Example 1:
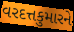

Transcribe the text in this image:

વરદત્તકુમારને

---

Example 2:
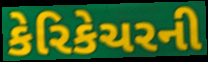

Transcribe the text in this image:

કેરિકેચરની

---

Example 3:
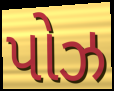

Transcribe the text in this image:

પોઝ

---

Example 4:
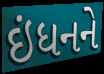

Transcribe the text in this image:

ઇંધનને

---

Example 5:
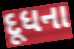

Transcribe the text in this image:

દૂધના